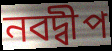
নবদ্বীপ